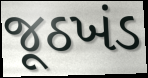
જૂઠખંડ